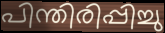
പിന്തിരിപ്പിച്ചു